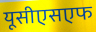
यूसीएसएफ